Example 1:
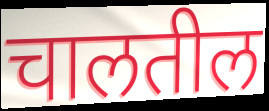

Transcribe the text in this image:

चालतील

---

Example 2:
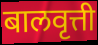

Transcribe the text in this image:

बालवृत्ती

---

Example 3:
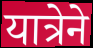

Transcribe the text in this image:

यात्रेने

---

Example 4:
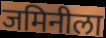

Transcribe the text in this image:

जमिनीला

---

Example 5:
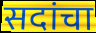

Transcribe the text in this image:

सदांचा